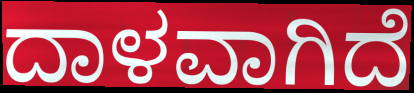
ದಾಳವಾಗಿದೆ